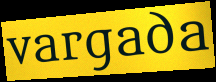
vargada